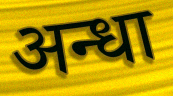
अन्धा